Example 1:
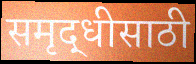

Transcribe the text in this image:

समृद्धीसाठी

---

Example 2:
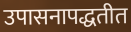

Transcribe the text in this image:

उपासनापद्धतीत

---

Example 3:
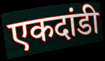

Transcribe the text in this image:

एकदांडी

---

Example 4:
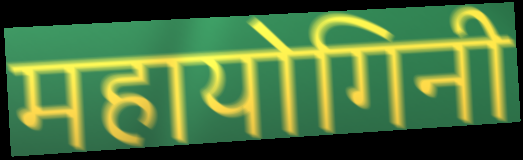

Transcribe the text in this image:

महायोगिनी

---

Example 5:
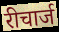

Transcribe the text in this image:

रीचार्ज